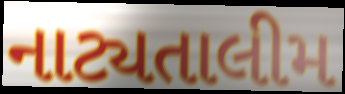
નાટ્યતાલીમ